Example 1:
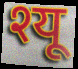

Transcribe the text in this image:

श्यू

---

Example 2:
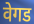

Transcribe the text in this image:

वेगड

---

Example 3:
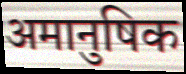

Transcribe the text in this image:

अमानुषिक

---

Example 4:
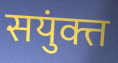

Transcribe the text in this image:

सयुंक्त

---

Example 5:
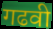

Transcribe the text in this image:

गढवी